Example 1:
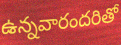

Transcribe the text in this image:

ఉన్నవారందరితో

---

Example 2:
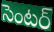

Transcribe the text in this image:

సెంటర్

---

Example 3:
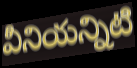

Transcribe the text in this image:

వీనియన్నిటి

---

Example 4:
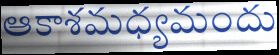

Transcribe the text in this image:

ఆకాశమధ్యమందు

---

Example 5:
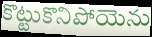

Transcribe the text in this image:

కొట్టుకొనిపోయెను